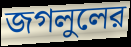
জগলুলের